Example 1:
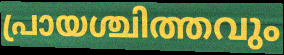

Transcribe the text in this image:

പ്രായശ്ചിത്തവും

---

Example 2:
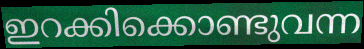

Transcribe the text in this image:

ഇറക്കിക്കൊണ്ടുവന്ന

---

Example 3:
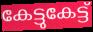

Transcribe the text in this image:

കേട്ടുകേട്ട്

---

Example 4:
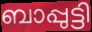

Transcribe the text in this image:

ബാപ്പുട്ടി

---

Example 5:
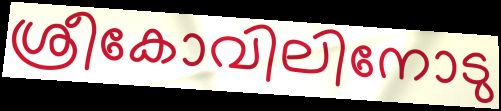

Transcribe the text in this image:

ശ്രീകോവിലിനോടു